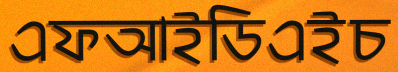
এফআইডিএইচ